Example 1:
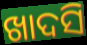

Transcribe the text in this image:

ଖାଦସି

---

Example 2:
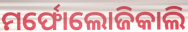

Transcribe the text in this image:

ମର୍ଫୋଲୋଜିକାଲି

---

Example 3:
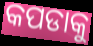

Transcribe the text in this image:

କପଡାକୁ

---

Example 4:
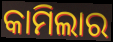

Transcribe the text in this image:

କାମିଲାର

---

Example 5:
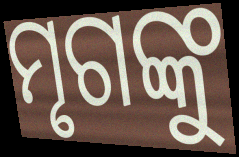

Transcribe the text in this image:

ମୃଗଙ୍କୁ